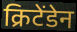
क्रिटेंडेन